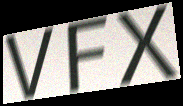
VFX